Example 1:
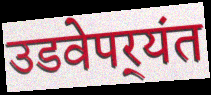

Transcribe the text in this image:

उडवेपर्यंत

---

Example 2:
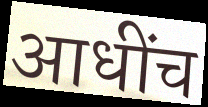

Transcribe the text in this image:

आधींच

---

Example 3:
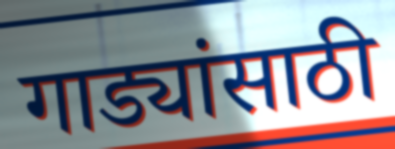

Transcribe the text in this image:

गाड्यांसाठी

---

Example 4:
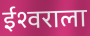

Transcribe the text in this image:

ईश्वराला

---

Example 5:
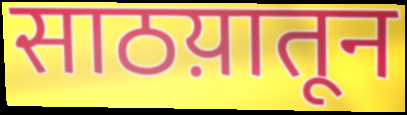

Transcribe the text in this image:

साठय़ातून